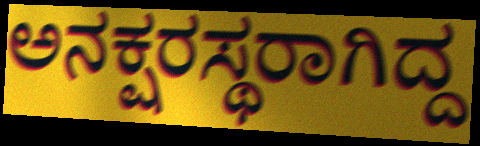
ಅನಕ್ಷರಸ್ಥರಾಗಿದ್ದ